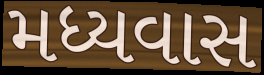
મધ્યવાસ